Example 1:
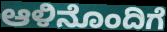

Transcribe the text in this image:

ಆಳಿನೊಂದಿಗೆ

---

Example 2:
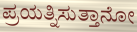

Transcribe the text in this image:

ಪ್ರಯತ್ನಿಸುತ್ತಾನೋ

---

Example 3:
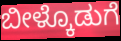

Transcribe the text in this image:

ಬೀಳ್ಕೊಡುಗೆ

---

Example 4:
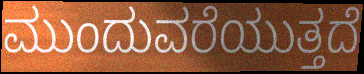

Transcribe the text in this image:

ಮುಂದುವರೆಯುತ್ತದೆ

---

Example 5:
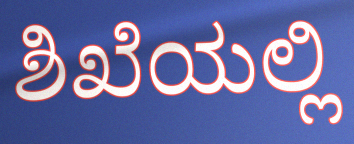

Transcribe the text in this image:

ಶಿಖೆಯಲ್ಲಿ